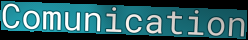
Comunication